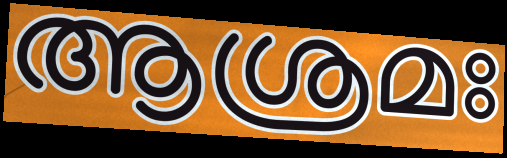
ആശ്രമഃ